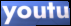
youtu